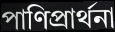
পাণিপ্রার্থনা